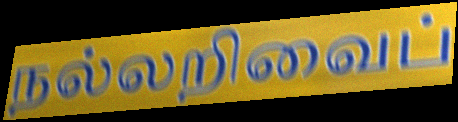
நல்லறிவைப்